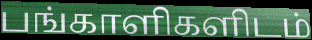
பங்காளிகளிடம்